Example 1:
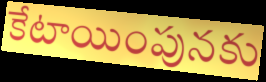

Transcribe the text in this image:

కేటాయింపునకు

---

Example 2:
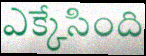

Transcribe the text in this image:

ఎక్కేసింది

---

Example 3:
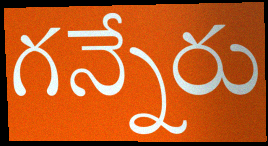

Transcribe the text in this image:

గన్నేరు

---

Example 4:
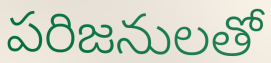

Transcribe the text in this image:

పరిజనులతో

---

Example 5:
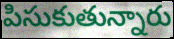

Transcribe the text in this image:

పిసుకుతున్నారు